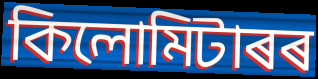
কিলোমিটাৰৰ